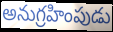
అనుగ్రహింపుడు